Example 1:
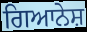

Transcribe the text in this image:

ਗਿਆਨੇਸ਼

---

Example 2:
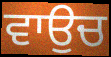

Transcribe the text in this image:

ਵਾਉਚ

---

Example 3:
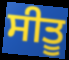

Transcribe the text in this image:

ਸੀਤੂ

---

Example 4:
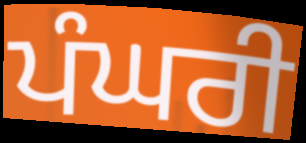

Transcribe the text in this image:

ਪੰਘਰੀ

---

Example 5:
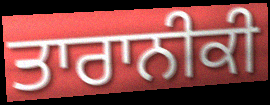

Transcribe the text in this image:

ਤਾਰਾਨੀਕੀ